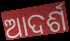
ଆଦର୍ଶ